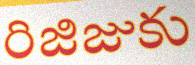
రిజిజుకు